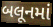
બલૂનમાં